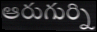
ఆరుగుర్ని